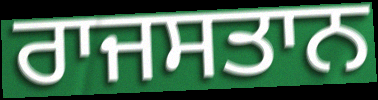
ਰਾਜਸਤਾਨ